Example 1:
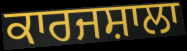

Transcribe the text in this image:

ਕਾਰਜਸ਼ਾਲਾ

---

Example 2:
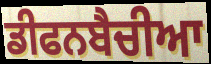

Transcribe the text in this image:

ਡੀਫਨਬੈਚੀਆ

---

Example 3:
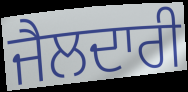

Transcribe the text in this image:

ਜੈਲਦਾਰੀ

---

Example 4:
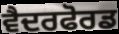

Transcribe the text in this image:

ਵੈਦਰਫੋਰਡ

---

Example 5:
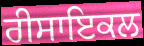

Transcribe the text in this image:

ਰੀਸਾਇਕਲ